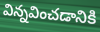
విన్నవించడానికి